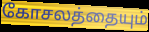
கோசலத்தையும்